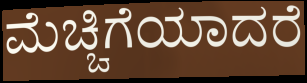
ಮೆಚ್ಚಿಗೆಯಾದರೆ